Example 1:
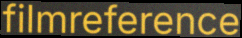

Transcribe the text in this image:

filmreference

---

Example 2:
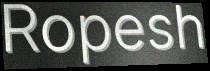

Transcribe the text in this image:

Ropesh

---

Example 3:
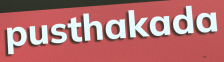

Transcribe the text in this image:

pusthakada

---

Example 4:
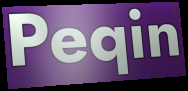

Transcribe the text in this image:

Peqin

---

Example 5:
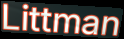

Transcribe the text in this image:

Littman